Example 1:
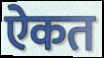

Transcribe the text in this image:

ऐकत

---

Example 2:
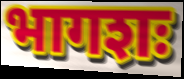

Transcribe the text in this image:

भागशः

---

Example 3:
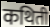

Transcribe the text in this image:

कथिती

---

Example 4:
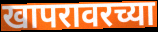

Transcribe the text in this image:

खापरावरच्या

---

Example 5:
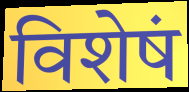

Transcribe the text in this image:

विशेषं